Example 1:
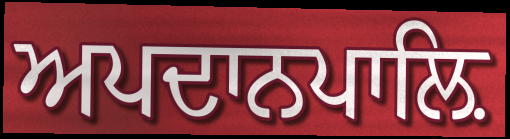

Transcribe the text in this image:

ਅਪਦਾਨਪਾਲ਼ਿ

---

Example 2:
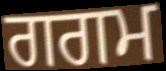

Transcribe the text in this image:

ਗਗਮ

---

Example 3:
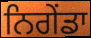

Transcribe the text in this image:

ਨਿਗੇਂਡਾ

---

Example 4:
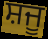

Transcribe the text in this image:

ਸ਼ਜੂ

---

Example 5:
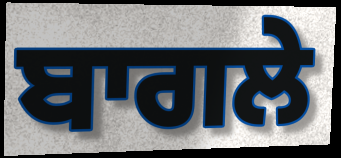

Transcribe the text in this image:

ਬਾਗਲੇ